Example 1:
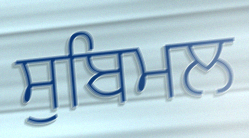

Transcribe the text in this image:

ਸੁਬਿਮਲ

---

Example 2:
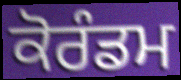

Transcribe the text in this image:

ਕੋਰੰਡਮ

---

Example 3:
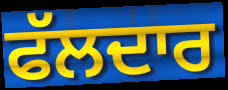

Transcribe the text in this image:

ਫੱਲਦਾਰ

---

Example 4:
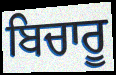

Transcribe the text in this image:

ਬਿਚਾਰੂ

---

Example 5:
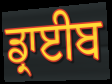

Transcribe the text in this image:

ਡ੍ਰਾਈਬ